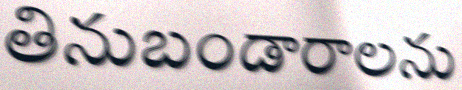
తినుబండారాలను